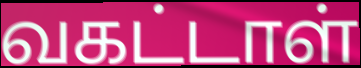
வகட்டாள்